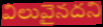
విలువైనదని